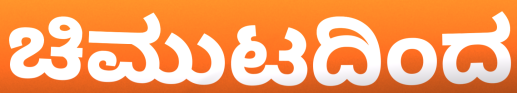
ಚಿಮುಟದಿಂದ